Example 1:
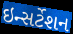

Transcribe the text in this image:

ઇન્સર્ટેશન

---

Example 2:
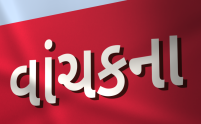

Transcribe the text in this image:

વાંચકના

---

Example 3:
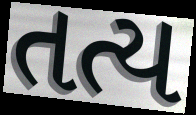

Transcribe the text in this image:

તત્ય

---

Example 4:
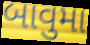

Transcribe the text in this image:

બાવુમા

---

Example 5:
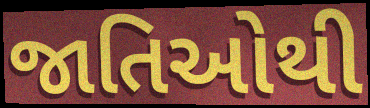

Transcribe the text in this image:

જાતિઓથી